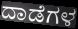
ದಾಡೆಗಳ